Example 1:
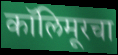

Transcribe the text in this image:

कॉलिमूरचा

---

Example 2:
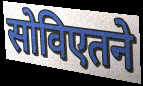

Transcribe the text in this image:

सोविएतने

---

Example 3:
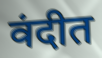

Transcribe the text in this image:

वंदीत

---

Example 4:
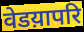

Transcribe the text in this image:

वेडय़ापरि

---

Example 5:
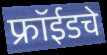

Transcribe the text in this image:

फ्रॉईडचे